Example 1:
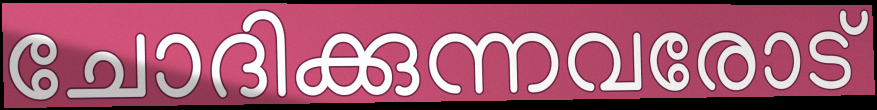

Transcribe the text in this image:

ചോദിക്കുന്നവരോട്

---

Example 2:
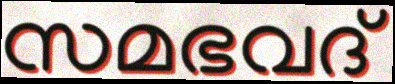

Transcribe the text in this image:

സമഭവദ്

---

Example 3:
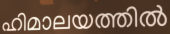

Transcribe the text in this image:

ഹിമാലയത്തിൽ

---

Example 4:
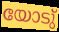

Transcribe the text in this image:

യോടു്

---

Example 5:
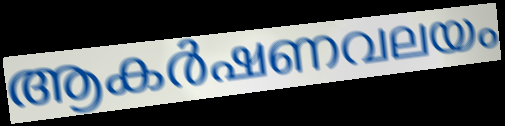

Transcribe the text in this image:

ആകർഷണവലയം